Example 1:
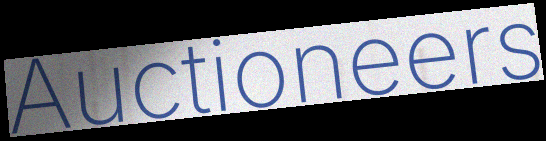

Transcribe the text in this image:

Auctioneers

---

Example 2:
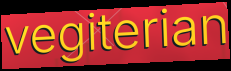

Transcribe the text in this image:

vegiterian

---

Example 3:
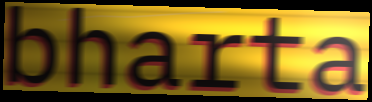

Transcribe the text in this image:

bharta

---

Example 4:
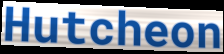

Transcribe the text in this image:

Hutcheon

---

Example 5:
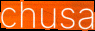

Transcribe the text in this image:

chusa